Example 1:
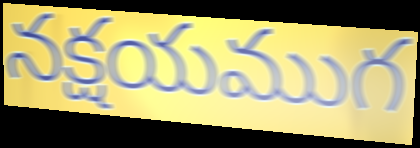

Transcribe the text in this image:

నక్షయముగ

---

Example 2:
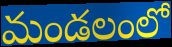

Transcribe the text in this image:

మండలంలో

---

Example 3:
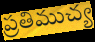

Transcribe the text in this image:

ప్రతిముచ్య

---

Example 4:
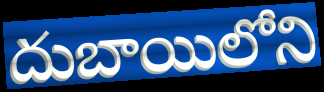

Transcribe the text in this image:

దుబాయిలోని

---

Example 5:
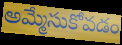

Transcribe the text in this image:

అమ్మేసుకోవడం